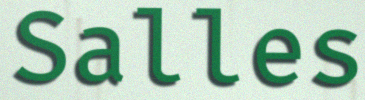
Salles